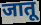
जातू